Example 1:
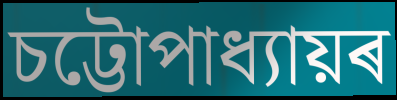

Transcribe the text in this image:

চট্টোপাধ্যায়ৰ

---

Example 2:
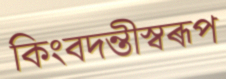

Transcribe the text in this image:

কিংবদন্তীস্বৰূপ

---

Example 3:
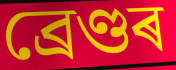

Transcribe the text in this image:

ব্ৰেণ্ডৰ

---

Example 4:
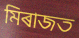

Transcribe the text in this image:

মিৰাজত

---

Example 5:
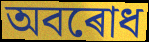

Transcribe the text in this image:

অবৰোধ